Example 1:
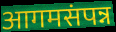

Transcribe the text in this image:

आगमसंपन्न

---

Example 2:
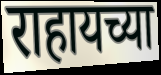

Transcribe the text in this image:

राहायच्या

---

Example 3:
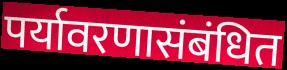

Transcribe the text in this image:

पर्यावरणासंबंधित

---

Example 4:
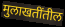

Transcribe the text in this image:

मुलाखतींतील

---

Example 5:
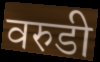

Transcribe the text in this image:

वरुडी